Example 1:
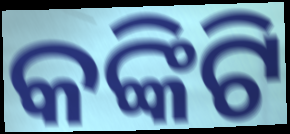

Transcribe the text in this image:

କଙ୍କିଟି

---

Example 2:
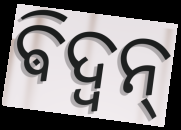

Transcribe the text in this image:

ଵିଦ୍ଵନ୍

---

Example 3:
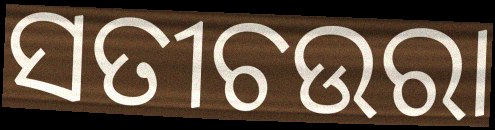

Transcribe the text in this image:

ସତୀଚଉରା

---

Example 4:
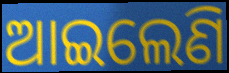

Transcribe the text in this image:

ଆଇଲେଣି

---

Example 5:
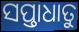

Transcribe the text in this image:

ସପ୍ତାଧାତୁ